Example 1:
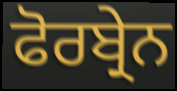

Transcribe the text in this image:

ਫੋਰਬ੍ਰੇਨ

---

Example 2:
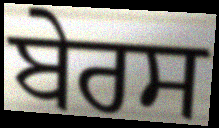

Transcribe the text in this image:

ਬੇਰਸ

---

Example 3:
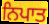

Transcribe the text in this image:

ਨਿਪਾਤ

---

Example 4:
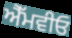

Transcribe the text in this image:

ਐੱਮਵੀਓ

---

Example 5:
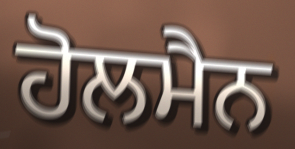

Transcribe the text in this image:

ਹੋਲਮੈਨ